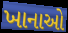
ખાનાઓ